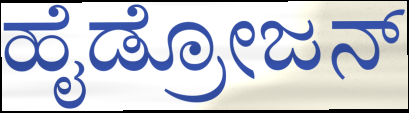
ಹೈಡ್ರೋಜನ್